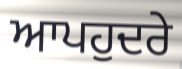
ਆਪਹੁਦਰੇ